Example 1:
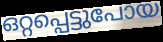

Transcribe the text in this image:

ഒറ്റപ്പെട്ടുപോയ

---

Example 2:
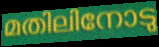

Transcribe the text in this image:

മതിലിനോടു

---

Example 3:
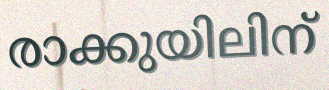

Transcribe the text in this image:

രാക്കുയിലിന്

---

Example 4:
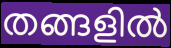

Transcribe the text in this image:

തങ്ങളിൽ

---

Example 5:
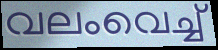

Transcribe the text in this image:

വലംവെച്ച്